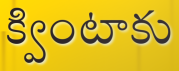
క్వింటాకు